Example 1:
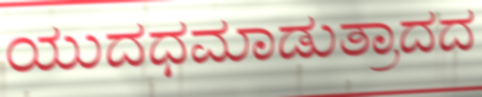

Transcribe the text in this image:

ಯುದಧಮಾಡುತ್ರಾದದ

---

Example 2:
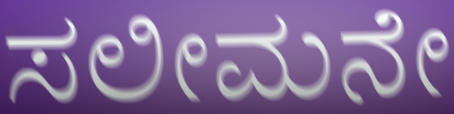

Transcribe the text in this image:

ಸಲೀಮನೇ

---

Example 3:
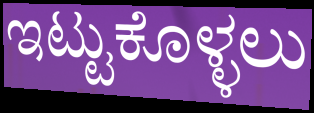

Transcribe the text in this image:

ಇಟ್ಟುಕೊಳ್ಳಲು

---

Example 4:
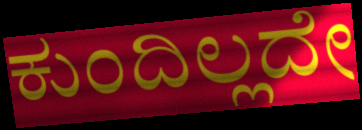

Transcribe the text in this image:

ಕುಂದಿಲ್ಲದೇ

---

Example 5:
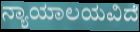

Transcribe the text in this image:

ನ್ಯಾಯಾಲಯವಿದೆ